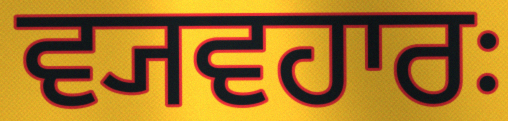
ਵ੍ਯਵਹਾਰਃ